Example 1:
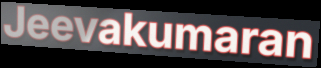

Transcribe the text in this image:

Jeevakumaran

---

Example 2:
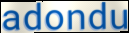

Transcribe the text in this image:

adondu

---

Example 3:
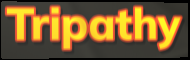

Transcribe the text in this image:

Tripathy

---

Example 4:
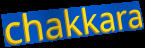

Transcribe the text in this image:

chakkara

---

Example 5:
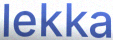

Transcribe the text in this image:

lekka